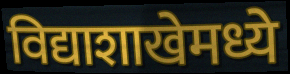
विद्याशाखेमध्ये